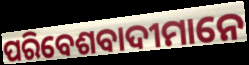
ପରିବେଶବାଦୀମାନେ